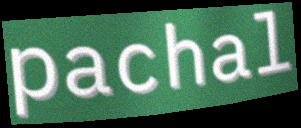
pachal